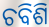
ଚବିଶି